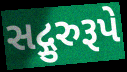
સદ્ગુરુરૂપે